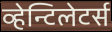
व्हेन्टिलेटर्स